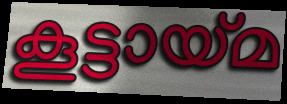
കൂട്ടായ്മ